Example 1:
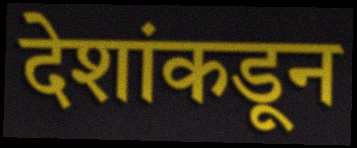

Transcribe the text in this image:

देशांकडून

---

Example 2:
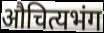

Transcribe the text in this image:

औचित्यभंग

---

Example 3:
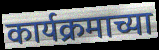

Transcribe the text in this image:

कार्यक्रमाच्या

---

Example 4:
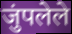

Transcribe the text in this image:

जुंपलेले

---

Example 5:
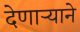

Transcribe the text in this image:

देणार्‍याने